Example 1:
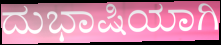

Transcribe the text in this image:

ದುಭಾಷಿಯಾಗಿ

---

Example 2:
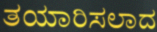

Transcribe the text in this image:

ತಯಾರಿಸಲಾದ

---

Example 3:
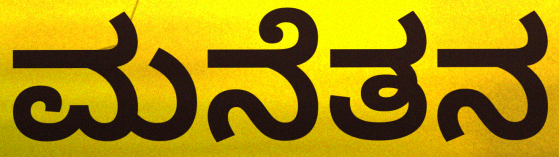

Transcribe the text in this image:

ಮನೆತನ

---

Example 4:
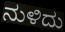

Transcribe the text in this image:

ನುಳಿದು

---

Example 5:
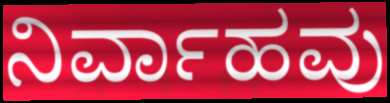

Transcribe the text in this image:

ನಿರ್ವಾಹವು